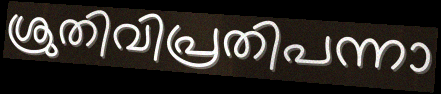
ശ്രുതിവിപ്രതിപന്നാ